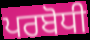
ਪਰਬੋਧੀ